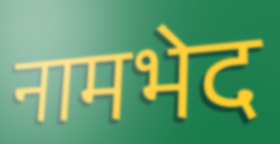
नामभेद